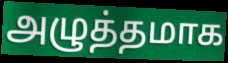
அழுத்தமாக